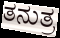
ತನುತ್ರ